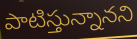
పాటిస్తున్నానని